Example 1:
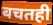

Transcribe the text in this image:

बचतही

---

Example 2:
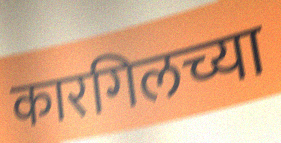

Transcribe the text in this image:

कारगिलच्या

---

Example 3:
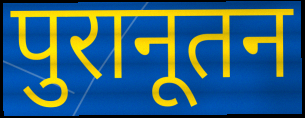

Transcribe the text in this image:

पुरानूतन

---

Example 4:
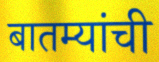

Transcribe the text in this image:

बातम्यांची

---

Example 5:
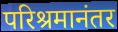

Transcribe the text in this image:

परिश्रमानंतर